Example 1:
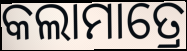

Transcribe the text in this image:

କଲାମାତ୍ରେ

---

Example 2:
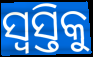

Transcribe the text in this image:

ସ୍ୱସ୍ତିକୁ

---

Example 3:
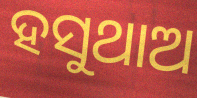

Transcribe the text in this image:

ହସୁଥାଅ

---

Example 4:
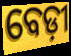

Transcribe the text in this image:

ବେଡ଼ୀ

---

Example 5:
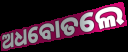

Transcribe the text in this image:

ଅଧବୋତଲେ